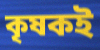
কৃষকই